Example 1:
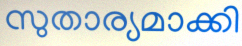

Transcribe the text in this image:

സുതാര്യമാക്കി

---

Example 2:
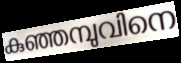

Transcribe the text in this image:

കുഞ്ഞമ്പുവിനെ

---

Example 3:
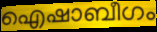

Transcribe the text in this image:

ഐഷാബീഗം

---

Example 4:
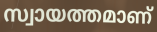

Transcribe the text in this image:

സ്വായത്തമാണ്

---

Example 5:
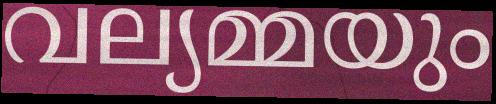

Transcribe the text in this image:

വല്യമ്മയും